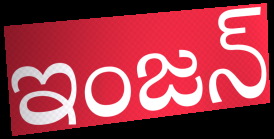
ఇంజన్